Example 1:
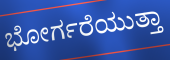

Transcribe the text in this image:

ಭೋರ್ಗರೆಯುತ್ತಾ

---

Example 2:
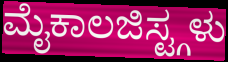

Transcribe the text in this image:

ಮೈಕಾಲಜಿಸ್ಟ್ಗಳು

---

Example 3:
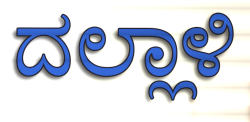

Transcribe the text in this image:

ದಲ್ಲಾಳಿ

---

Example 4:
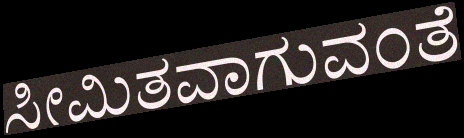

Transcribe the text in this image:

ಸೀಮಿತವಾಗುವಂತೆ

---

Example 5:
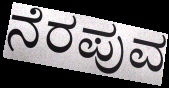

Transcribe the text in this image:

ನೆರಪುವ